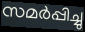
സമർപ്പിച്ചു